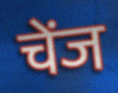
चेंज